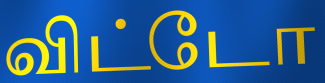
விட்டோ